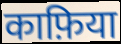
काफ़िया